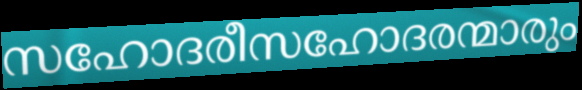
സഹോദരീസഹോദരന്മാരും